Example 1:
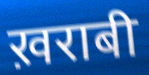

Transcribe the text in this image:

ख़राबी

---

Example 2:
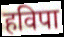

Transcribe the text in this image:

हविपा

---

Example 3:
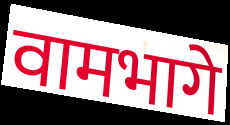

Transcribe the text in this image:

वामभागे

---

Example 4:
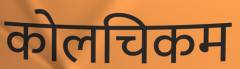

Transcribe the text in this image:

कोलचिकम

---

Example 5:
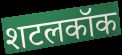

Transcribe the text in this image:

शटलकॉक